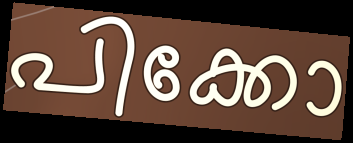
പിക്കോ